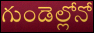
గుండెల్లోనో